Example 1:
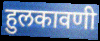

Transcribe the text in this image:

हुलकावणी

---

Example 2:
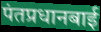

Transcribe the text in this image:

पंतप्रधानबाई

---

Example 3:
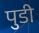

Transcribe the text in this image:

पुडी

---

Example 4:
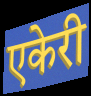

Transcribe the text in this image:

एकेरी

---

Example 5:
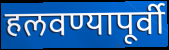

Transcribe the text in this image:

हलवण्यापूर्वी